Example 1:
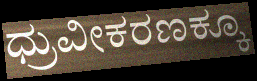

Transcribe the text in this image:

ಧ್ರುವೀಕರಣಕ್ಕೂ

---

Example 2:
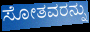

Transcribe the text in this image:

ಸೋತವರನ್ನು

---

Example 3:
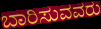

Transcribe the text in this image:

ಬಾರಿಸುವವರು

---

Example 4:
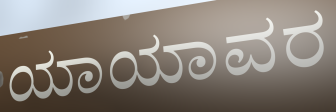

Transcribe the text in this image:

ಯಾಯಾವರ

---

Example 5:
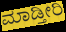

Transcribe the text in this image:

ಮಾಡ್ತೀರಿ